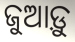
ଜୁଆଡ଼ୁ